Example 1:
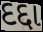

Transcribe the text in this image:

દદ્દા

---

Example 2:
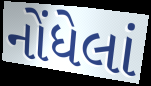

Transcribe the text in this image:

નોંધેલાં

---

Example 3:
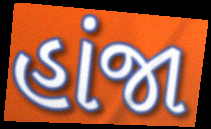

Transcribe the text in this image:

હાંજા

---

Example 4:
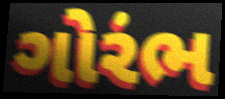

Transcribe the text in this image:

ગોરંભ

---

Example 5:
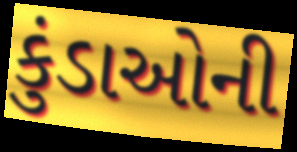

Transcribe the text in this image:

કુંડાઓની